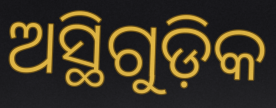
ଅସ୍ଥିଗୁଡ଼ିକ